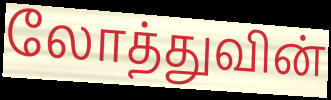
லோத்துவின்